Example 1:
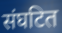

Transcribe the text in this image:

संघटित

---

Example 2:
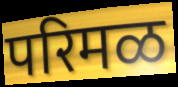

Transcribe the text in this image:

परिमळ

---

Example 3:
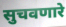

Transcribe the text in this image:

सुचवणारे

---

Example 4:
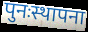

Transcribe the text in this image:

पुनःस्थापना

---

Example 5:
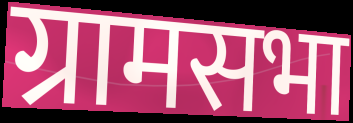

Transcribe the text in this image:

ग्रामसभा